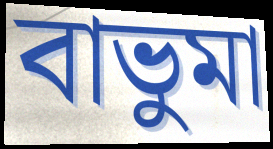
বাভুমা